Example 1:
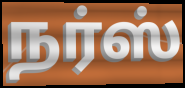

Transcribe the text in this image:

நர்ஸ்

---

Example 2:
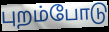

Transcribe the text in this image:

புறம்போடு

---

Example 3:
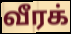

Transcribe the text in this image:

வீரக்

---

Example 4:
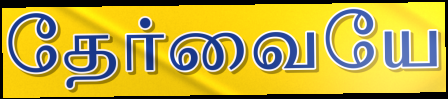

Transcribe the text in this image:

தேர்வையே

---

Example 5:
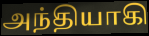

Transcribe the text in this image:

அந்தியாகி